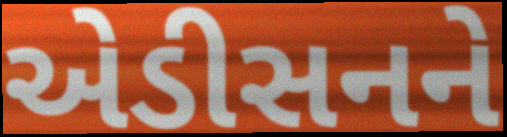
એડીસનને